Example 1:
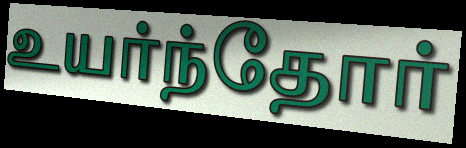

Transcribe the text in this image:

உயர்ந்தோர்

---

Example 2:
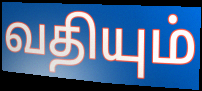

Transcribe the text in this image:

வதியும்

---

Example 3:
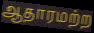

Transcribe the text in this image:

ஆதாரமற்ற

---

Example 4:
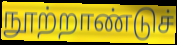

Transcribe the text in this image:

நூற்றாண்டுச்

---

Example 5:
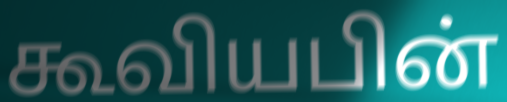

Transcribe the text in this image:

கூவியபின்